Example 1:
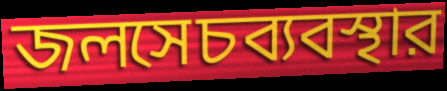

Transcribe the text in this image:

জলসেচব্যবস্থার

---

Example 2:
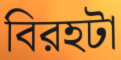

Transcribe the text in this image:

বিরহটা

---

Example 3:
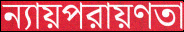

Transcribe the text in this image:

ন্যায়পরায়ণতা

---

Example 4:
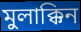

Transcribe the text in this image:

মুলাক্কিন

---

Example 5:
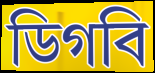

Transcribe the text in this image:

ডিগবি